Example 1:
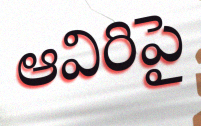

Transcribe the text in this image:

ఆవిరిపై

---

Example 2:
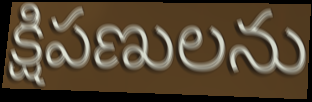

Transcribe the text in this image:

క్షిపణులను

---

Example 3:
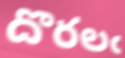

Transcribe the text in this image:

దొరలఁ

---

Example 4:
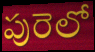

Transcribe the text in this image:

పురెలో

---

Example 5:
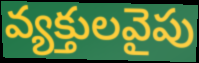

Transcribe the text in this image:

వ్యక్తులవైపు